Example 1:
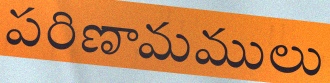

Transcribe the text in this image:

పరిణామములు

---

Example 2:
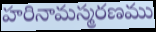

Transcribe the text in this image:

హరినామస్మరణము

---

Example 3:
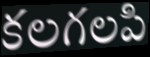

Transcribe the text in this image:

కలగలపి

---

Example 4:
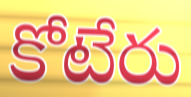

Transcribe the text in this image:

కోటేరు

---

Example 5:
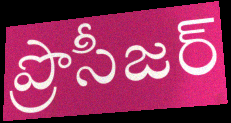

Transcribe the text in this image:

ప్రొసీజర్